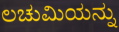
ಲಚುಮಿಯನ್ನು